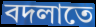
বদলাতে